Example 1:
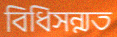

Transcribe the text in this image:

বিধিসন্মত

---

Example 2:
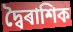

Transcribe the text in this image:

দ্বৈৰাশিক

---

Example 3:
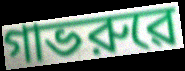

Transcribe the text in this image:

গাভৰুৱে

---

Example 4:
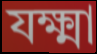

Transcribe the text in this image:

যক্ষ্মা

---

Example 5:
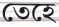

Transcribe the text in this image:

তেহে